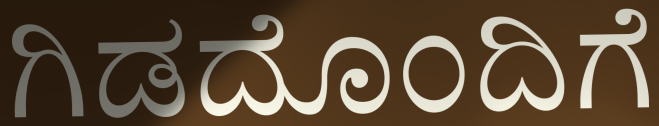
ಗಿಡದೊಂದಿಗೆ